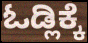
ಓಡ್ಲಿಕ್ಕೆ